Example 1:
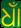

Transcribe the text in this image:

ଧାଁ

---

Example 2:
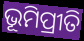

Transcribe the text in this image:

ଭୂମିପ୍ରୀତି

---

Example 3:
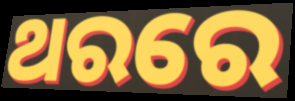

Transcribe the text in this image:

ଥରରେ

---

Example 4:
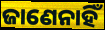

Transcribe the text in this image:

ଜାଣେନାହିଁ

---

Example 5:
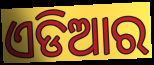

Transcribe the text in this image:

ଏଡିଆର